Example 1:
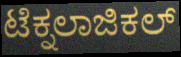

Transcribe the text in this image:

ಟೆಕ್ನಲಾಜಿಕಲ್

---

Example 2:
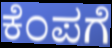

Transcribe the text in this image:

ಕೆಂಪಗೆ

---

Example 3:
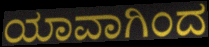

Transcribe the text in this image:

ಯಾವಾಗಿಂದ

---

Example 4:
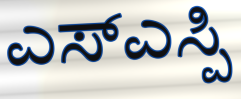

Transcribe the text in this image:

ಎಸ್ಎಸ್ಪಿ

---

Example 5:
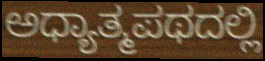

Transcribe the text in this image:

ಅಧ್ಯಾತ್ಮಪಥದಲ್ಲಿ